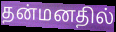
தன்மனதில்